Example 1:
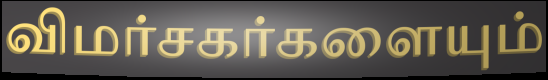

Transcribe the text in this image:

விமர்சகர்களையும்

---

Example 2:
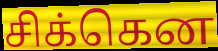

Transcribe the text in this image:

சிக்கென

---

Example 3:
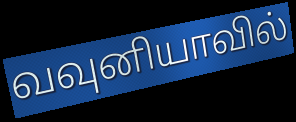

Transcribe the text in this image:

வவுனியாவில்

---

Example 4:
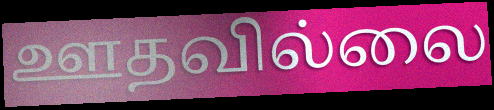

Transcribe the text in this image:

ஊதவில்லை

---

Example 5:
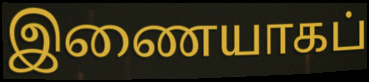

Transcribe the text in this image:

இணையாகப்